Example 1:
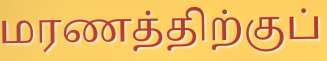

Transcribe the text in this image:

மரணத்திற்குப்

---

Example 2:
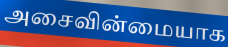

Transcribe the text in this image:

அசைவின்மையாக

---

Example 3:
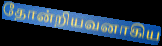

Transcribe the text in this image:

தோன்றியவனாகிய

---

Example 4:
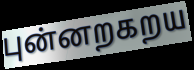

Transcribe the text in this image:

புன்னறகறய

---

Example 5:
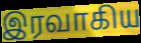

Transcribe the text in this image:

இரவாகிய